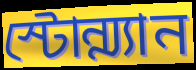
স্টোন্ম্যান